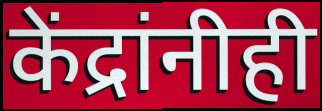
केंद्रांनीही